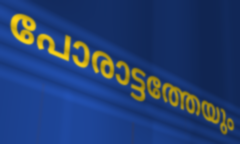
പോരാട്ടത്തേയും